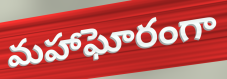
మహాఘోరంగా